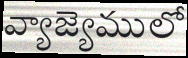
వ్యాజ్యెములో